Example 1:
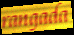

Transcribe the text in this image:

rangada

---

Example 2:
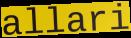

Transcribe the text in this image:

allari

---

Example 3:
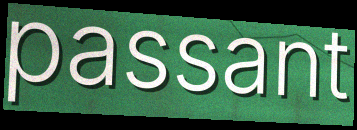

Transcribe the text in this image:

passant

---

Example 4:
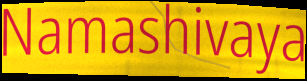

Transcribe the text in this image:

Namashivaya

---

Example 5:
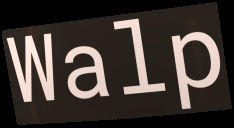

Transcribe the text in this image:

Walp